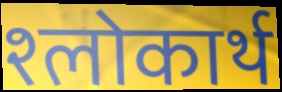
श्लोकार्थ